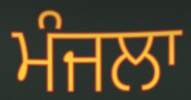
ਮੰਜਲਾ